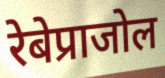
रेबेप्राजोल